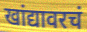
खांद्यावरचं